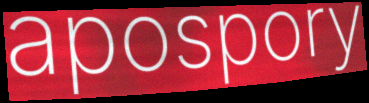
apospory